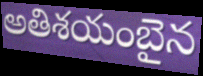
అతిశయంబైన